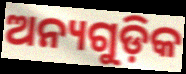
ଅନ୍ୟଗୁଡ଼ିକ